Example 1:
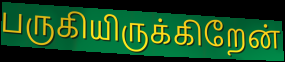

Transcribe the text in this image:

பருகியிருக்கிறேன்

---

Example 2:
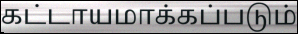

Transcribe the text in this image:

கட்டாயமாக்கப்படும்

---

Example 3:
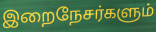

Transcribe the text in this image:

இறைநேசர்களும்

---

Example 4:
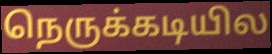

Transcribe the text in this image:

நெருக்கடியில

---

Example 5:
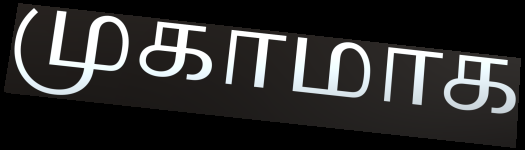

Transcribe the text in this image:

முகாமாக